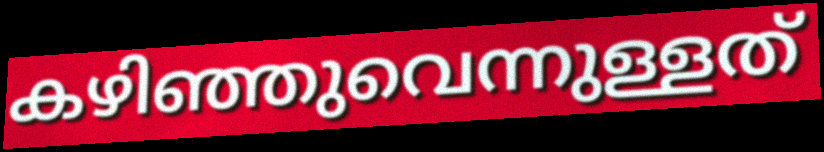
കഴിഞ്ഞുവെന്നുള്ളത്